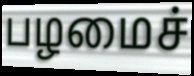
பழமைச்